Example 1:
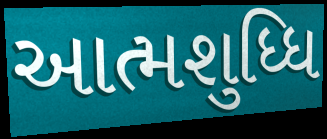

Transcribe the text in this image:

આત્મશુધ્ધિ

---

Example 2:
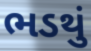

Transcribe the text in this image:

ભડથું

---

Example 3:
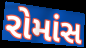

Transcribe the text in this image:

રોમાંસ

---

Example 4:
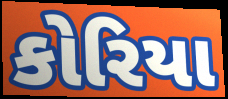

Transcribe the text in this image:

કોરિયા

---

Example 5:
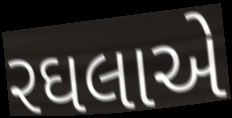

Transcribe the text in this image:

રઘલાએ